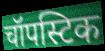
चॉपस्टिक